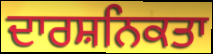
ਦਾਰਸ਼ਨਿਕਤਾ